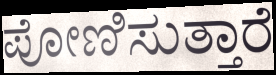
ಪೋಣಿಸುತ್ತಾರೆ